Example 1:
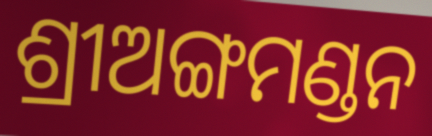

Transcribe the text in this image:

ଶ୍ରୀଅଙ୍ଗମଣ୍ଡନ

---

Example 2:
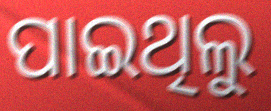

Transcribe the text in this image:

ପାଇଥିଲୁ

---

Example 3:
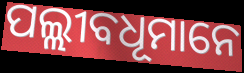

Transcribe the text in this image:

ପଲ୍ଲୀବଧୂମାନେ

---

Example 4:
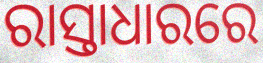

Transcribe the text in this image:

ରାସ୍ତାଧାରରେ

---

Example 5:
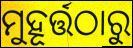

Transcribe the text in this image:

ମୁହୂର୍ତ୍ତଠାରୁ